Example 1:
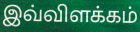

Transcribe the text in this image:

இவ்விளக்கம்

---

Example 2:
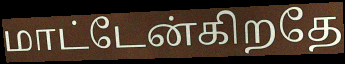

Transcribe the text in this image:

மாட்டேன்கிறதே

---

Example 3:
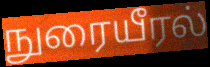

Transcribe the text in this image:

நுரையீரல்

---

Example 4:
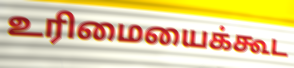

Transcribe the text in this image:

உரிமையைக்கூட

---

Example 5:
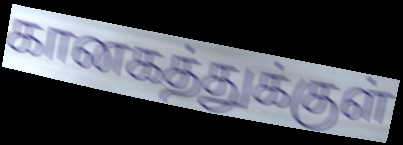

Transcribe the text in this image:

கானகத்துக்குள்